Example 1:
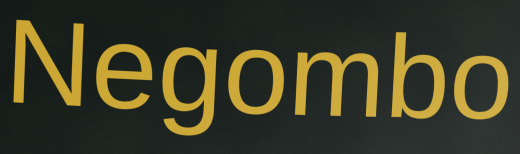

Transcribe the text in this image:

Negombo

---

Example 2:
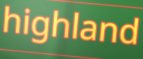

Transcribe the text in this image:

highland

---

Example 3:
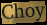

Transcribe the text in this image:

Choy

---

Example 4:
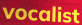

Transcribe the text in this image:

vocalist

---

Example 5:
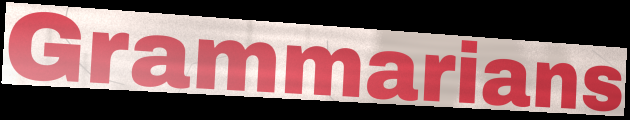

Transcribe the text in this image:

Grammarians